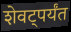
शेवट्पर्यंत